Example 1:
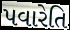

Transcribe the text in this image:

પવારેતિ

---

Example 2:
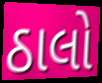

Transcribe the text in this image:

ઠાલો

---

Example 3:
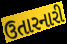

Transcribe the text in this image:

ઉતારનારી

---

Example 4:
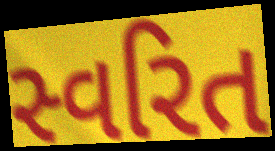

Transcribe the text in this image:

સ્વરિત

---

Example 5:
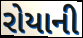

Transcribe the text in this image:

રોયાની